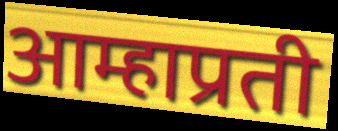
आम्हाप्रती